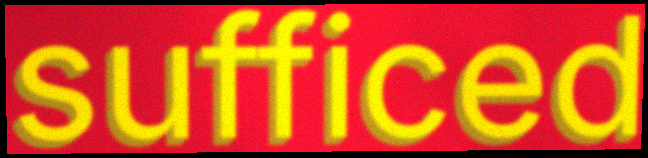
sufficed